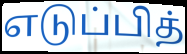
எடுப்பித்